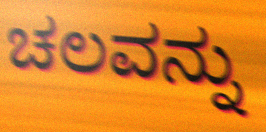
ಚಲವನ್ನು